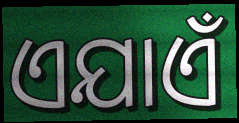
ଏଯାଏଁ